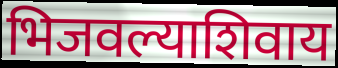
भिजवल्याशिवाय